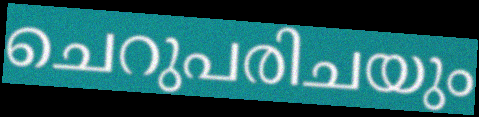
ചെറുപരിചയും